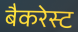
बैकरेस्ट